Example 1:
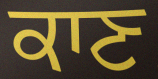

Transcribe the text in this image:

ਕਾਣ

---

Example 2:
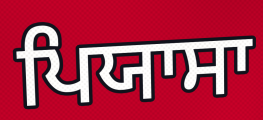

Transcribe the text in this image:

ਪਿਯਾਸਾ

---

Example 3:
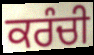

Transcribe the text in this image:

ਕਰੰਚੀ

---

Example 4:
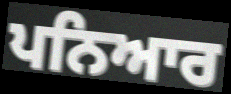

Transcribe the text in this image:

ਪਨਿਆਰ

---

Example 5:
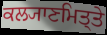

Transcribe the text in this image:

ਕਲ੍ਯਾਣਮਿਤ੍ਤੇ